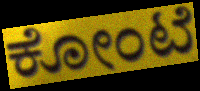
ಕೋಂಟೆ